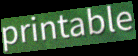
printable